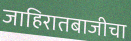
जाहिरातबाजीचा